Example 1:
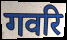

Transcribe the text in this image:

गवरि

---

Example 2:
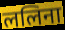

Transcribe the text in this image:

ललिना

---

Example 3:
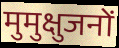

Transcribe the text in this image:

मुमुक्षुजनों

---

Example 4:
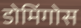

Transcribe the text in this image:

डोमिंगोस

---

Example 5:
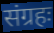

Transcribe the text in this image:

संग्रहः